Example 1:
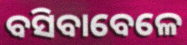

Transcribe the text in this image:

ବସିବାବେଳେ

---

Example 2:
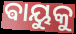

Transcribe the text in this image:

ଵାୟୁକୁ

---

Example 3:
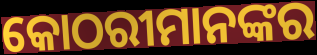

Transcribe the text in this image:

କୋଠରୀମାନଙ୍କର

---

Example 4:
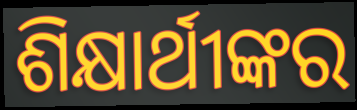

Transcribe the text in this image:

ଶିକ୍ଷାର୍ଥୀଙ୍କର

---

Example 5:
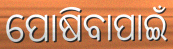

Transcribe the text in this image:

ପୋଷିବାପାଇଁ